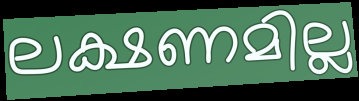
ലക്ഷണമില്ല